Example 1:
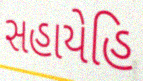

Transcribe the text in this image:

સહાયેહિ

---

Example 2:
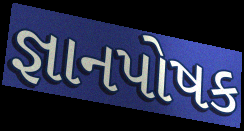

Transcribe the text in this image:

જ્ઞાનપોષક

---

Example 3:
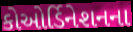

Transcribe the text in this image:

કોઓર્ડિનેશનના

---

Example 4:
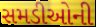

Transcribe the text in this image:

સમડીઓની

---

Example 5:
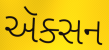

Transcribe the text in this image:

ઍક્સન